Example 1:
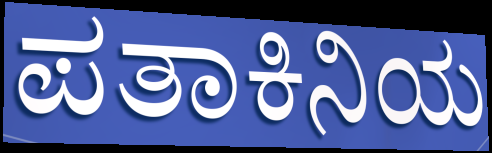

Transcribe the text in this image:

ಪತಾಕಿನಿಯ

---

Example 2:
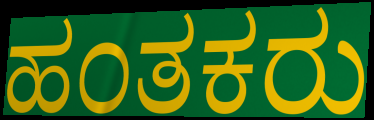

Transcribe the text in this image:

ಹಂತಕರು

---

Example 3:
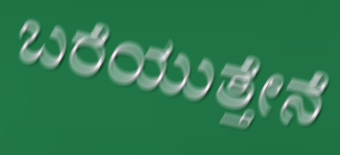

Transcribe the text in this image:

ಬರೆಯುತ್ತೇನೆ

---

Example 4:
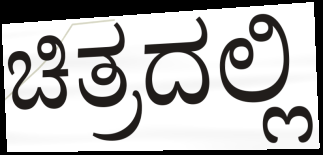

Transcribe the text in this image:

ಚಿತ್ರದಲ್ಲಿ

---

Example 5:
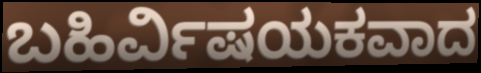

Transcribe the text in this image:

ಬಹಿರ್ವಿಷಯಕವಾದ